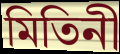
মিতিনী